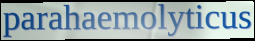
parahaemolyticus